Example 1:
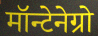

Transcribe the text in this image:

मॉन्टेनेग्रो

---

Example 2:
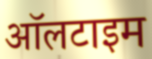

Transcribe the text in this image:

ऑलटाइम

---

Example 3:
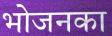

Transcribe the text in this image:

भोजनका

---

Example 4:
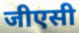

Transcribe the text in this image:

जीएसी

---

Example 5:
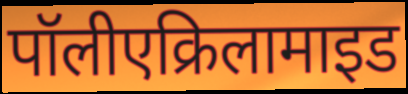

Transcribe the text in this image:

पॉलीएक्रिलामाइड